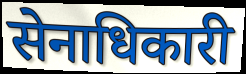
सेनाधिकारी